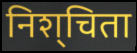
निश्चिता